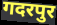
गदरपुर